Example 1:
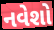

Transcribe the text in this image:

નવેશો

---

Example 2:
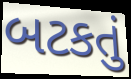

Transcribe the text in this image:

બટકતું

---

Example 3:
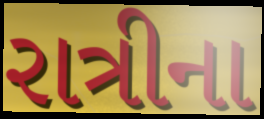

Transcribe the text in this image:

રાત્રીના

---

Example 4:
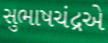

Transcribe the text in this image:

સુભાષચંદ્રએ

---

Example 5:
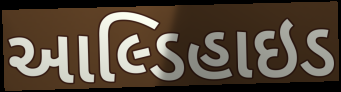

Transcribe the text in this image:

આલ્ડિહાઇડ